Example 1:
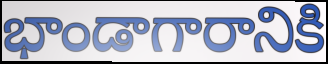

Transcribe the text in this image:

భాండాగారానికి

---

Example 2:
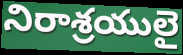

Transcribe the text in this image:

నిరాశ్రయులై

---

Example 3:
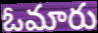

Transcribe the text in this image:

ఓమారు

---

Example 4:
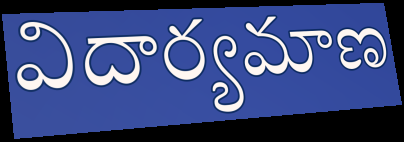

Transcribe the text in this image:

విదార్యమాణ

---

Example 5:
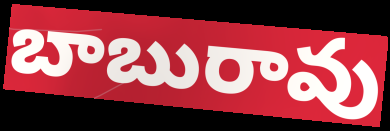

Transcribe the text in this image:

బాబురావు